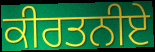
ਕੀਰਤਨੀਏ